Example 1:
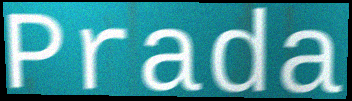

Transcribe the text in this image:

Prada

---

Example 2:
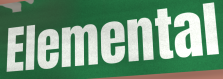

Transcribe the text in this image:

Elemental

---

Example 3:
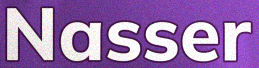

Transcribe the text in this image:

Nasser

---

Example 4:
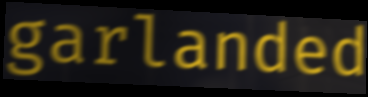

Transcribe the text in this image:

garlanded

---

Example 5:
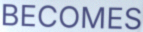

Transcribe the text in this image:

BECOMES